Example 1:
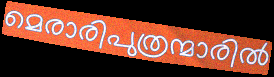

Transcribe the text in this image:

മെരാരിപുത്രന്മാരിൽ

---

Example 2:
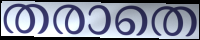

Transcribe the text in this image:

തരാതെ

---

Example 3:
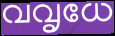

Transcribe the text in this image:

വവൃധേ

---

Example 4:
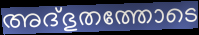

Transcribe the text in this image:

അദ്ഭുതത്തോടെ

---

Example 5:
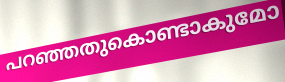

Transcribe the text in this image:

പറഞ്ഞതുകൊണ്ടാകുമോ